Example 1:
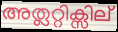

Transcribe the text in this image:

അത്ലറ്റിക്സില്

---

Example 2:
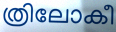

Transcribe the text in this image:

ത്രിലോകീ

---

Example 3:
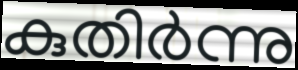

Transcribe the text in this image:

കുതിർന്നു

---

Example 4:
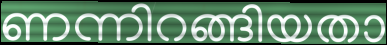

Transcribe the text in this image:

ണന്നിറങ്ങിയതാ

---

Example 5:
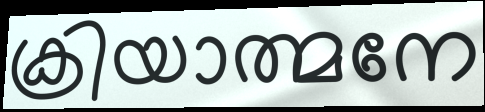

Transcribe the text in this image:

ക്രിയാത്മനേ